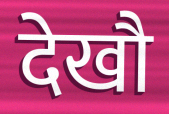
देखौ